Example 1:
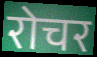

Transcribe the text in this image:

रोचर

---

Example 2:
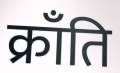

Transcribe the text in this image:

क्राँति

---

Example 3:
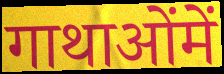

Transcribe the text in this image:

गाथाओंमें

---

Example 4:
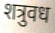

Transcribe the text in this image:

शत्रुवध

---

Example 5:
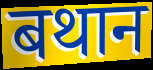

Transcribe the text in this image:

बथान